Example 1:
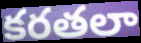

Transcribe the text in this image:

కరతలా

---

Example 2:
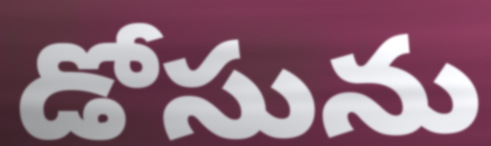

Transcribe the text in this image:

డోసును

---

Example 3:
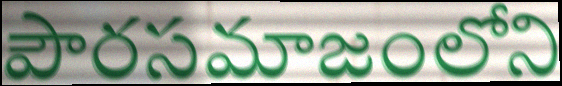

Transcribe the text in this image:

పౌరసమాజంలోని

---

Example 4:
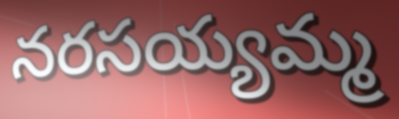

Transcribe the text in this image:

నరసయ్యమ్మ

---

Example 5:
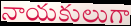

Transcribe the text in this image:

నాయకులుగా